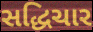
સદ્ધિચાર